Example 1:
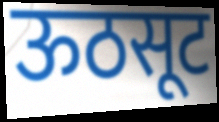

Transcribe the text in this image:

ऊठसूट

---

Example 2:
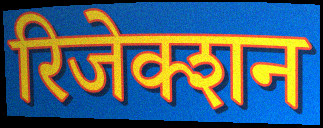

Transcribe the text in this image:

रिजेक्शन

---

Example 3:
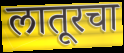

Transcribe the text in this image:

लातूरचा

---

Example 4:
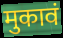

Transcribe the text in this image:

मुकावं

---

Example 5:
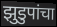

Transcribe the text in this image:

झुडुपांचा